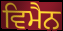
ਵਿਮੈਨ